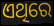
ଏଥିରେ